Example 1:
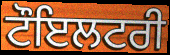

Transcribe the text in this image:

ਟੌਇਲਟਰੀ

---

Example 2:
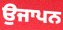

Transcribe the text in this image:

ਉਜਾਪਨ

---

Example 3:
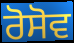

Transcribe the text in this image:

ਰੋਸੋਵ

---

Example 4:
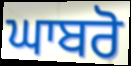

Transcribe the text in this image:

ਘਾਬਰੋ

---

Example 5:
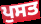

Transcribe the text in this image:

ਪੁਸਤ